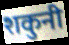
शकुनी